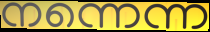
നന്നെന്ന